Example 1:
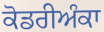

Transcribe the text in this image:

ਕੋਡਰੀਅੰਕਾ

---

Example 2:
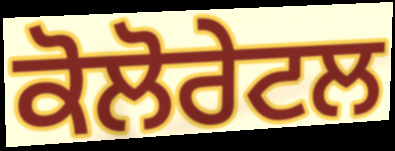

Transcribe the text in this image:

ਕੋਲੋਰੇਟਲ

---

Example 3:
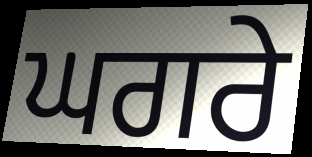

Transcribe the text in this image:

ਘਗਰੇ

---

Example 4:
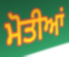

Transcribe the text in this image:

ਮੋਤੀਆਂ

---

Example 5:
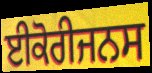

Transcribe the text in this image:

ਈਕੋਰੀਜਨਸ